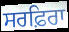
ਸਰਫ਼ਿਰਾ